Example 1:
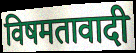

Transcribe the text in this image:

विषमतावादी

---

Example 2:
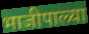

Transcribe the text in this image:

भाजीपाल्या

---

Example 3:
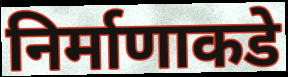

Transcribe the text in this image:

निर्माणाकडे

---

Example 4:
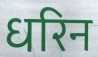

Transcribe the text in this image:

धरिन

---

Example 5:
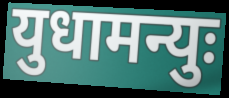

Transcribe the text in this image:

युधामन्युः